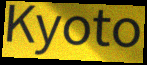
Kyoto